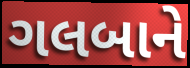
ગલબાને